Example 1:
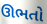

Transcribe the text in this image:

ઊભતો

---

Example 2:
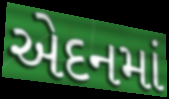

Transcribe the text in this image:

એદનમાં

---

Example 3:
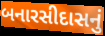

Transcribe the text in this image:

બનારસીદાસનું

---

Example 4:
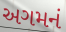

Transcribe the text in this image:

અગમનં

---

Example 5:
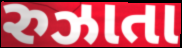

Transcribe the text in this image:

રુઝાતા